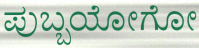
ಪುಬ್ಬಯೋಗೋ